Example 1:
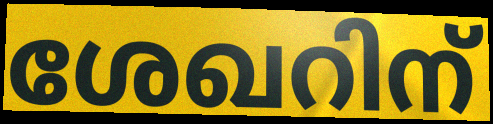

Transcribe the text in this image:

ശേഖറിന്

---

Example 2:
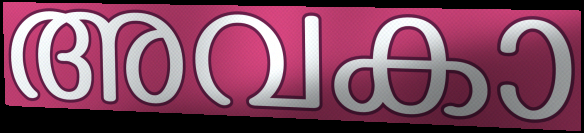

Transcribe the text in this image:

അവകാ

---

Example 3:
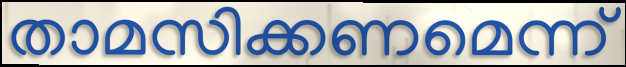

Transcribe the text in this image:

താമസിക്കണമെന്ന്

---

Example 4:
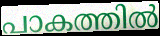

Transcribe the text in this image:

പാകത്തിൽ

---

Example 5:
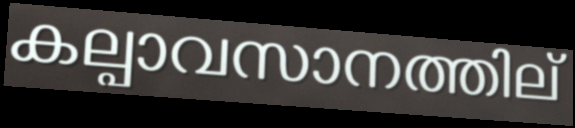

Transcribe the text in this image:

കല്പാവസാനത്തില്